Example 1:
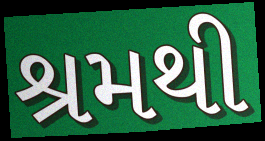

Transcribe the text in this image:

શ્રમથી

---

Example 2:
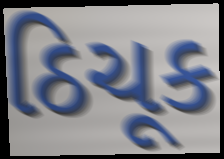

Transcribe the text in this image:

ઠિચૂક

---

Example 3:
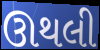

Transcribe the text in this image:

ઊથલી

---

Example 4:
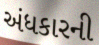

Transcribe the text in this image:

અંધકારની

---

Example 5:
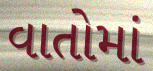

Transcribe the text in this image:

વાતોમાં